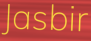
Jasbir